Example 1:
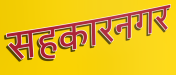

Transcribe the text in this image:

सहकारनगर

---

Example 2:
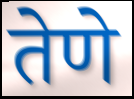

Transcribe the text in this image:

तेणे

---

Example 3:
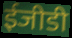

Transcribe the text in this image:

ईजीडी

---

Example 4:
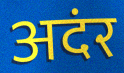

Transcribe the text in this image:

अदंर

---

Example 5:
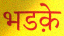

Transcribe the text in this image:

भडक़े